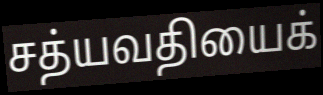
சத்யவதியைக்